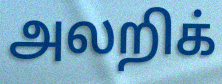
அலறிக்